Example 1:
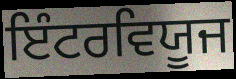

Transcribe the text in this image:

ਇੰਟਰਵਿਯੂਜ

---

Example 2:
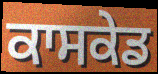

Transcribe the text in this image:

ਕਾਸਕੇਡ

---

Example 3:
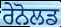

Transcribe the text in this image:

ਰੇਨੋਲਡ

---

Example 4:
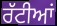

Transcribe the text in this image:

ਰੱਟੀਆਂ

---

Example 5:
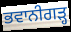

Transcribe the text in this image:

ਭਵਾਨੀਗੜ੍ਹ